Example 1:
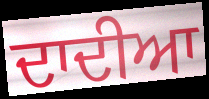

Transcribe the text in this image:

ਦਾਦੀਆ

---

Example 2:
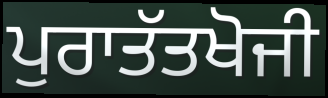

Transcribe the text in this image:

ਪੁਰਾਤੱਤਖੋਜੀ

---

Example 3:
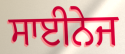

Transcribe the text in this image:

ਸਾਈਨੇਜ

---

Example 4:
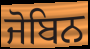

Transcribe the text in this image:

ਜੋਬਿਨ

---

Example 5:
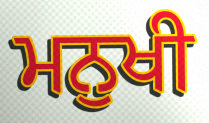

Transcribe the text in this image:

ਮਨੁਖੀ